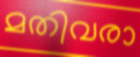
മതിവരാ